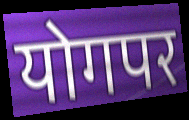
योगपर